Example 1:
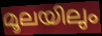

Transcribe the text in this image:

മൂലയിലും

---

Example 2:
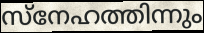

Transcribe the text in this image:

സ്നേഹത്തിന്നും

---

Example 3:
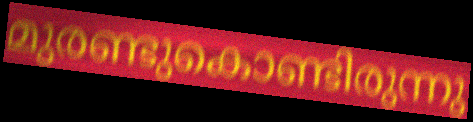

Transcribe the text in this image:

മുരണ്ടുകൊണ്ടിരുന്നു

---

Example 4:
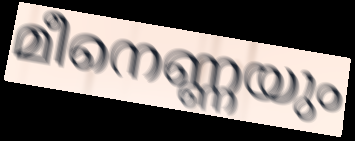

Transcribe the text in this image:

മീനെണ്ണയും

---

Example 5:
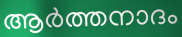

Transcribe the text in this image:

ആർത്തനാദം